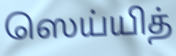
ஸெய்யித்